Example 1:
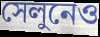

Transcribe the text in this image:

সেলুনেও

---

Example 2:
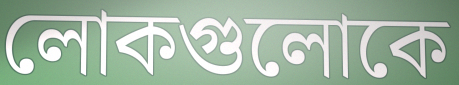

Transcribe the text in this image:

লোকগুলোকে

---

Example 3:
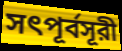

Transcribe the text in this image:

সৎপূর্বসূরী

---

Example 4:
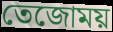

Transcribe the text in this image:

তেজোময়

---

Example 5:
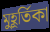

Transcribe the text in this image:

মুহূর্তিকা